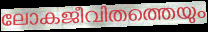
ലോകജീവിതത്തെയും